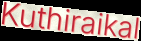
Kuthiraikal